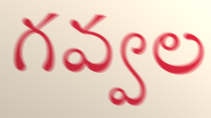
గవ్వల